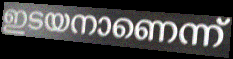
ഇടയനാണെന്ന്